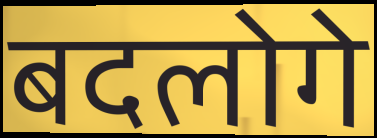
बदलोगे